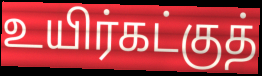
உயிர்கட்குத்